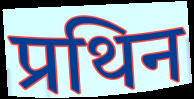
प्रथिन